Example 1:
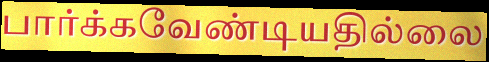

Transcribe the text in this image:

பார்க்கவேண்டியதில்லை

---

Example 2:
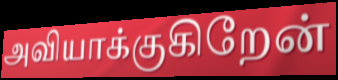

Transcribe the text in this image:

அவியாக்குகிறேன்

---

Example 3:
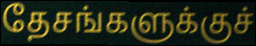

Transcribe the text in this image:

தேசங்களுக்குச்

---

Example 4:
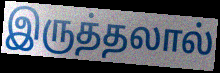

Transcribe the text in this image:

இருத்தலால்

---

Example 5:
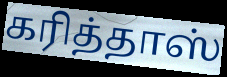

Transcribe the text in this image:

கரித்தாஸ்